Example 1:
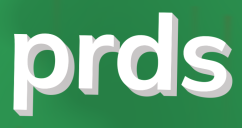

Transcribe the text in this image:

prds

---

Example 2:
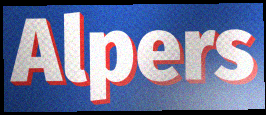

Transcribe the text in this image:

Alpers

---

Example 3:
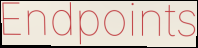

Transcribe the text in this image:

Endpoints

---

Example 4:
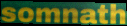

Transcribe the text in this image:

somnath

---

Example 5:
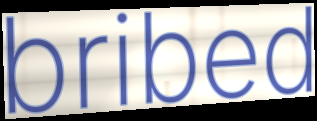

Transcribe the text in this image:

bribed